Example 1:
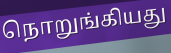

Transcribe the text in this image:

நொறுங்கியது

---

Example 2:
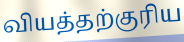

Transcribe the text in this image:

வியத்தற்குரிய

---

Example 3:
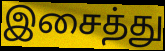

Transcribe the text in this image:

இசைத்து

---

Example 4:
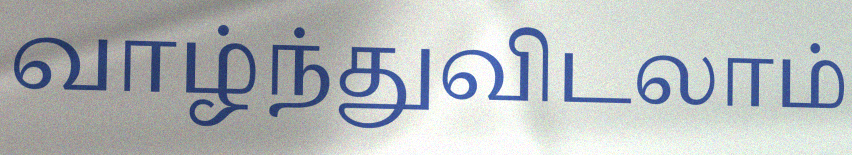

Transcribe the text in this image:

வாழ்ந்துவிடலாம்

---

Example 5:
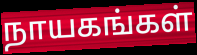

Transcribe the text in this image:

நாயகங்கள்